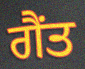
ਗੈਂਤ